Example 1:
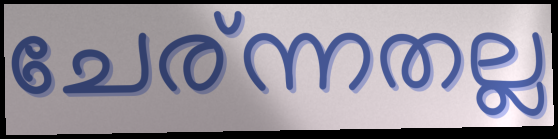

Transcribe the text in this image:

ചേര്ന്നതല്ല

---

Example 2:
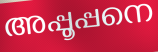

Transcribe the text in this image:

അപ്പൂപ്പനെ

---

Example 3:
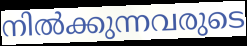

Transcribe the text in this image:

നിൽക്കുന്നവരുടെ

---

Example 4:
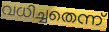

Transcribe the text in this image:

വധിച്ചതെന്ന്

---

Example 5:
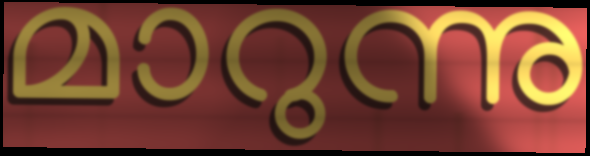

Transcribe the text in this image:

മാറുന്നു